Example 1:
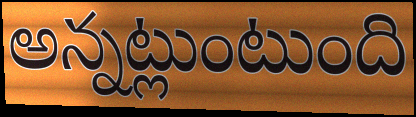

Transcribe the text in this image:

అన్నట్లుంటుంది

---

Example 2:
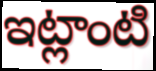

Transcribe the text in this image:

ఇట్లాంటి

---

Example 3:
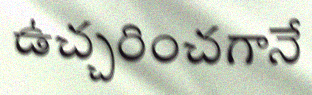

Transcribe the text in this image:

ఉచ్చరించగానే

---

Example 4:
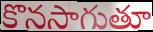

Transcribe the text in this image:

కొనసాగుతూ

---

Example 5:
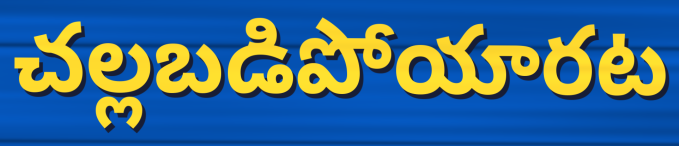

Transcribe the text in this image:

చల్లబడిపోయారట